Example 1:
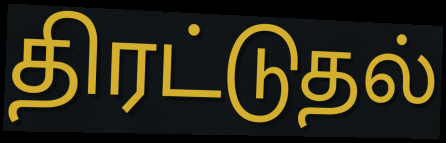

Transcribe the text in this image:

திரட்டுதல்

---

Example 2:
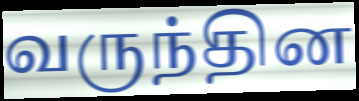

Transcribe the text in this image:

வருந்தின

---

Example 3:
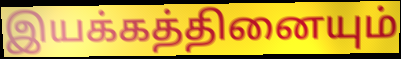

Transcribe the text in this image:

இயக்கத்தினையும்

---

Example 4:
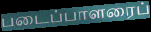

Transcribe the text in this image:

படைப்பாளரைப்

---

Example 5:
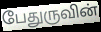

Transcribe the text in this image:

பேதுருவின்